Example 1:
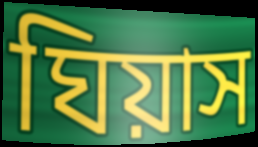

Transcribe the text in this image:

ঘিয়াস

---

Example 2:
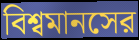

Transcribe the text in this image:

বিশ্বমানসের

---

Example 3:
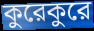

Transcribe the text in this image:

কুরেকুরে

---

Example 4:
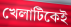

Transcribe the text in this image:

খেলাটিকেই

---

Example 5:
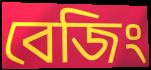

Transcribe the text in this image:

বেজিং